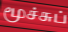
மூச்சுப்